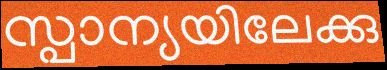
സ്പാന്യയിലേക്കു